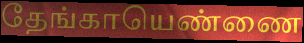
தேங்காயெண்ணை